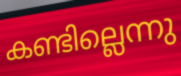
കണ്ടില്ലെന്നു